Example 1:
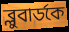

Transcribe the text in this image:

ব্লুবার্ডকে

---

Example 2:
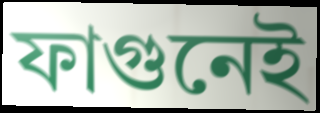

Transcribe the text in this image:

ফাগুনেই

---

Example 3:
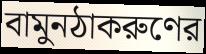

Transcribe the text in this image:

বামুনঠাকরুণের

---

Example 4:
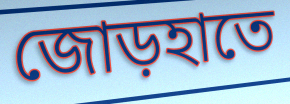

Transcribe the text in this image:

জোড়হাতে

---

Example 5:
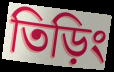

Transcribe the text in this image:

তিড়িং